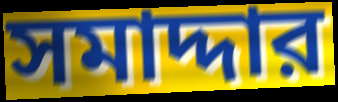
সমাদ্দার